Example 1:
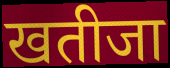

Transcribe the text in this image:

खतीजा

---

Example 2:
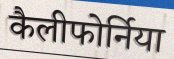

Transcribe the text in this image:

कैलीफोर्निया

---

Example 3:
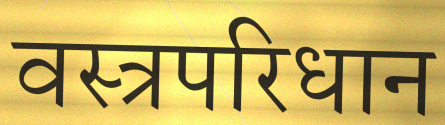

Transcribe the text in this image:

वस्त्रपरिधान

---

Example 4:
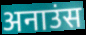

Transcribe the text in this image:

अनाउंस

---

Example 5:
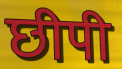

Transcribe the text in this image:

छीपी